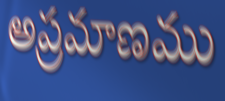
అప్రమాణము